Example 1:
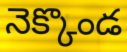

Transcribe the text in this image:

నెక్కొండ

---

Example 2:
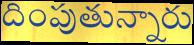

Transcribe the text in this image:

దింపుతున్నారు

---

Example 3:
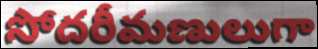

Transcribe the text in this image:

సోదరీమణులుగా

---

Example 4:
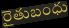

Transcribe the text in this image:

రైతుబంధు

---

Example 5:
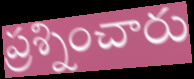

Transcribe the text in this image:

ప్రశ్నించారు